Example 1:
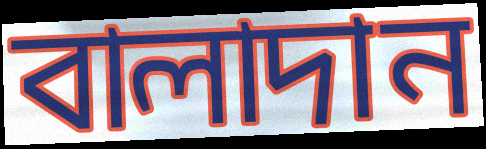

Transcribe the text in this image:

বালাদান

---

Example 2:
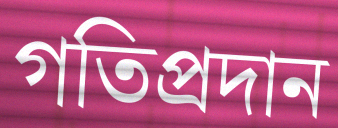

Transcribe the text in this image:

গতিপ্রদান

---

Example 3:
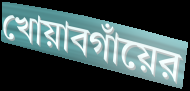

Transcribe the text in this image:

খোয়াবগাঁয়ের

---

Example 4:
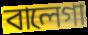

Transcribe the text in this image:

বালেগা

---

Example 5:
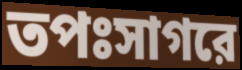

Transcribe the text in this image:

তপঃসাগরে